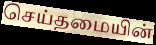
செய்தமையின்